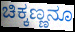
ಚಿಕ್ಕಣ್ಣನೂ